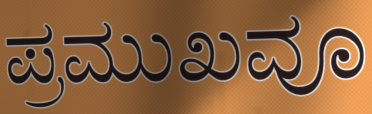
ಪ್ರಮುಖವೂ